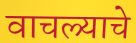
वाचल्याचे